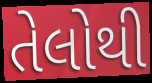
તેલોથી